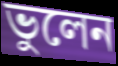
ভুলেন